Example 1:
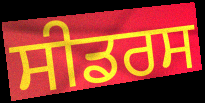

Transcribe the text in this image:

ਸੀਡਰਸ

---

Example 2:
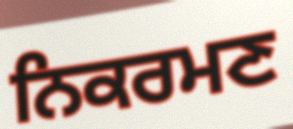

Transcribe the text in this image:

ਨਿਕਰਮਣ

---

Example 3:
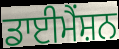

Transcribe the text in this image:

ਡਾਈਮੈਂਸ਼ਨ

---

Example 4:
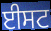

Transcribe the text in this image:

ਈਸਟ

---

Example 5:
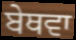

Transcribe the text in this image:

ਬੇਥਵਾ